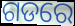
ଗଡରେ